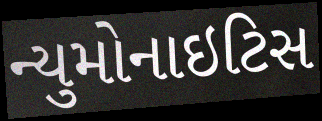
ન્યુમોનાઇટિસ